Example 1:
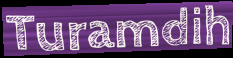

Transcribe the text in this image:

Turamdih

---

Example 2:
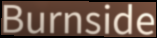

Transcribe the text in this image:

Burnside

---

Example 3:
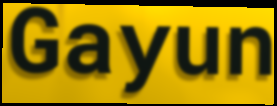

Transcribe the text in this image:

Gayun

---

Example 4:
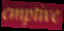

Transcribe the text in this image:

emptive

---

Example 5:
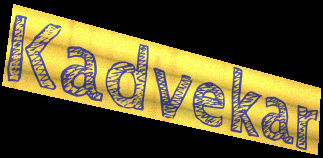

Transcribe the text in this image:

Kadvekar